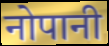
नोपानी